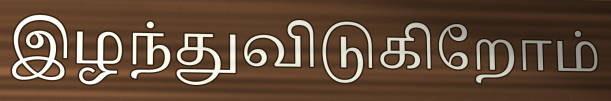
இழந்துவிடுகிறோம்